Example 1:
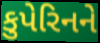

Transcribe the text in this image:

કુપેરિનને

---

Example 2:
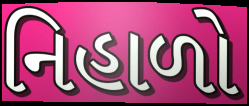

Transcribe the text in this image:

નિહાળો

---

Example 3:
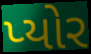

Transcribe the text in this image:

પ્યોર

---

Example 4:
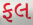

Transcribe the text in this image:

ફલ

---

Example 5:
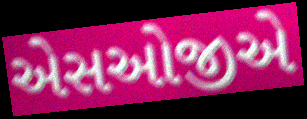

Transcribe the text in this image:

એસઓજીએ